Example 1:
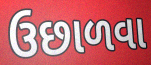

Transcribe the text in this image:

ઉછાળવા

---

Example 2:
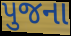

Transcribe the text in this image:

પુજના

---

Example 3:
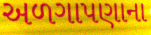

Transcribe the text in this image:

અળગાપણાના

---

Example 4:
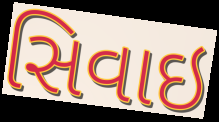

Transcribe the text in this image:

સિવાઇ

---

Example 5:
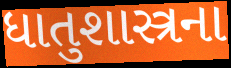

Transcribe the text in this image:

ધાતુશાસ્ત્રના